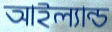
আইল্যান্ড